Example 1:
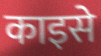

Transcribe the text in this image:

काइसे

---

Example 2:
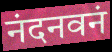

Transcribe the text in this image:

नंदनवनं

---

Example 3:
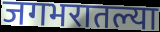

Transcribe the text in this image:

जगभरातल्या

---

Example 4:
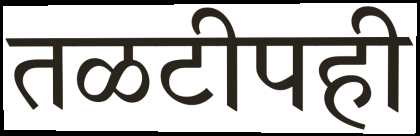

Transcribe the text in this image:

तळटीपही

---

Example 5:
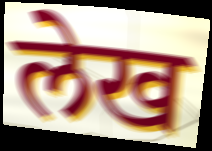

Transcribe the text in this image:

लेख